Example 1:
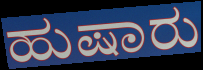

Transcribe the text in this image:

ಹುಷಾರು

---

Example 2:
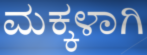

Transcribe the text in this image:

ಮಕ್ಕಳಾಗಿ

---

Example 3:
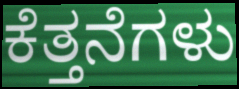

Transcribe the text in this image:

ಕೆತ್ತನೆಗಳು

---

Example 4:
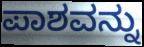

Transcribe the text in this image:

ಪಾಶವನ್ನು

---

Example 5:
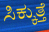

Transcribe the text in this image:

ಸಿಕ್ಕುತ್ತೆ